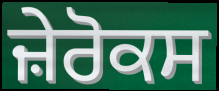
ਜ਼ੇਰੋਕਸ